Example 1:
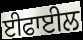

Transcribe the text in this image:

ਈਫਾਈਲ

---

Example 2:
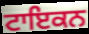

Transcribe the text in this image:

ਟਾਇਕਨ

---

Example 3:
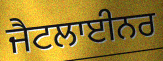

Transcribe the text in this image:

ਜੈਟਲਾਈਨਰ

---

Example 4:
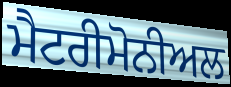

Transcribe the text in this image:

ਮੈਟਰੀਮੋਨੀਅਲ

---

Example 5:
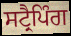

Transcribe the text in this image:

ਸਟ੍ਰੈਪਿੰਗ